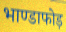
भाण्डाफोड़